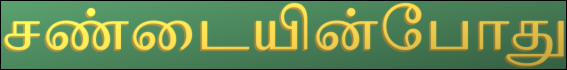
சண்டையின்போது